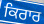
ਕਿਰਾਰ